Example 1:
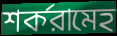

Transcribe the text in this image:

শর্করামেহ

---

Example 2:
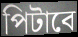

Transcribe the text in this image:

পিটাবে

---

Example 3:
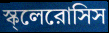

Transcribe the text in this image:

স্ক্লেরোসিস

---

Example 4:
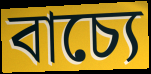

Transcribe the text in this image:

বাচ্যে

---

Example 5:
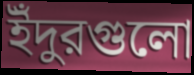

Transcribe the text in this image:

ইঁদুরগুলো